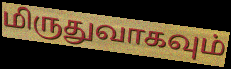
மிருதுவாகவும்